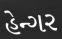
હેન્ગર